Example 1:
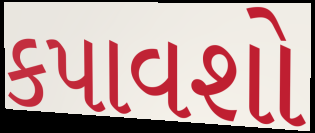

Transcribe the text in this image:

કપાવશો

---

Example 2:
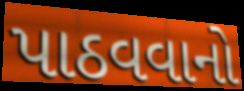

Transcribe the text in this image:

પાઠવવાનો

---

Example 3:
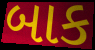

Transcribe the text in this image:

બાક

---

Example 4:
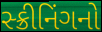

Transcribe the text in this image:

સ્ક્રીનિંગનો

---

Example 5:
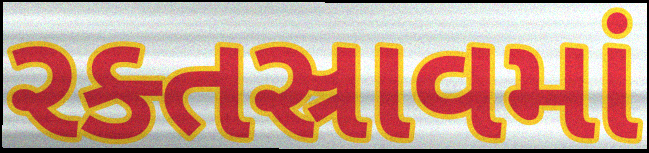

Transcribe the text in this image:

રક્તસ્રાવમાં